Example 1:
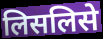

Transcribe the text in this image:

लिसलिसे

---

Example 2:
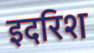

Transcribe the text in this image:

इदरिश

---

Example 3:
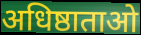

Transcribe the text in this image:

अधिष्ठाताओ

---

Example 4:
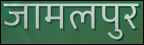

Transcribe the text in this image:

जामलपुर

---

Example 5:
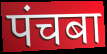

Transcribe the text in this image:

पंचबा